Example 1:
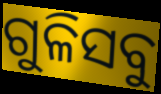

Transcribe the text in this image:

ଗୁଳିସବୁ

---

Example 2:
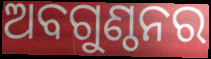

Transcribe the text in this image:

ଅବଗୁଣ୍ଠନର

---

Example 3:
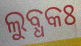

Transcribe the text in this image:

ଲୁବ୍ଧକଃ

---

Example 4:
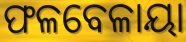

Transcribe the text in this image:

ଫଳବେଳାୟା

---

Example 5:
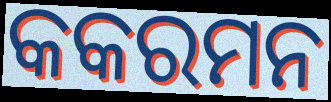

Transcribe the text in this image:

କକରମନ